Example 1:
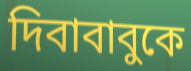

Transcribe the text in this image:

দিবাবাবুকে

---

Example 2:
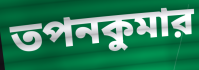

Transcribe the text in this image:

তপনকুমার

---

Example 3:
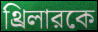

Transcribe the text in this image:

থ্রিলারকে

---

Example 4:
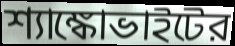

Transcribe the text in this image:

শ্যাঙ্কোভাইটের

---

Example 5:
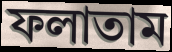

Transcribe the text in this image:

ফলাতাম